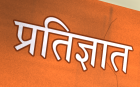
प्रतिज्ञात